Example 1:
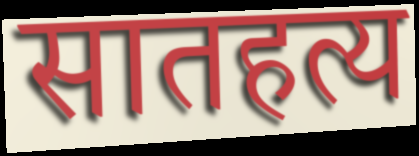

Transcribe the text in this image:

सातहत्य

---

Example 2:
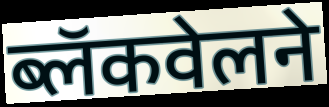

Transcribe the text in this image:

ब्लॅकवेलने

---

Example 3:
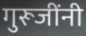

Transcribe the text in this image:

गुरूजींनी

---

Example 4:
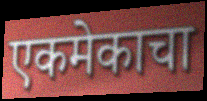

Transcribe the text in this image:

एकमेकाचा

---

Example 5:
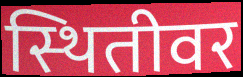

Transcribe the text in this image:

स्थितीवर